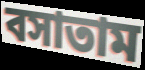
বসাতাম